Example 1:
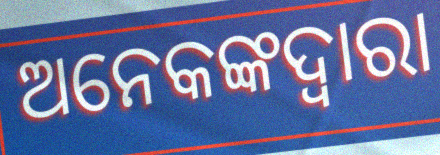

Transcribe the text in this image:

ଅନେକଙ୍କଦ୍ୱାରା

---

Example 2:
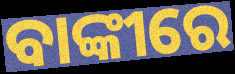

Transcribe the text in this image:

ବାଙ୍କୀରେ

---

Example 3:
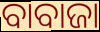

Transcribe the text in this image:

ବାବାଜା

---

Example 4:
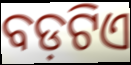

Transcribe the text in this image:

ବଡ଼ଟିଏ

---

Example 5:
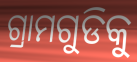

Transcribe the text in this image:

ଗ୍ରାମଗୁଡିକୁ